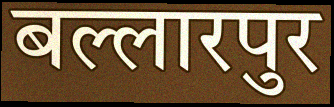
बल्लारपुर